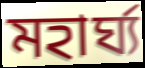
মহার্ঘ্য